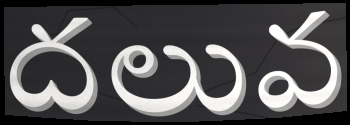
దలువ